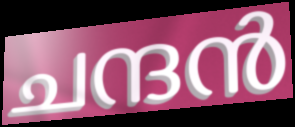
ചന്ദൻ